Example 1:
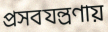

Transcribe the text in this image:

প্রসবযন্ত্রণায়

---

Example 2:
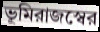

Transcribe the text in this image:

ভূমিরাজস্বের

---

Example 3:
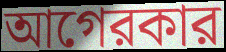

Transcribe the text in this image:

আগেরকার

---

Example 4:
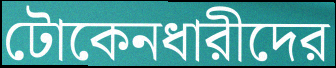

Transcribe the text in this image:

টোকেনধারীদের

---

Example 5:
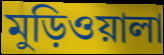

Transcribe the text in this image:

মুড়িওয়ালা